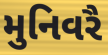
મુનિવરૈ